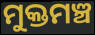
ମୁକ୍ତମଞ୍ଚ